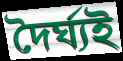
দৈৰ্ঘ্যই